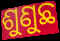
ଶୁଣୁଛ